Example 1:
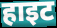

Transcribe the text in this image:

हाइट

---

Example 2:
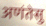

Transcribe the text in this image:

अणंतेसु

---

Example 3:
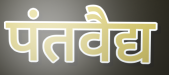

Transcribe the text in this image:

पंतवैद्य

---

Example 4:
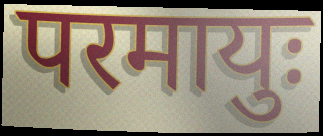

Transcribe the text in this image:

परमायुः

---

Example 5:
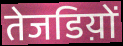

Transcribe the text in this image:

तेजडिय़ों